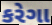
કરેગા